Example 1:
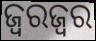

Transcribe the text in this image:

ଜ୍ୱରଜ୍ୱର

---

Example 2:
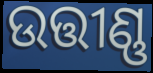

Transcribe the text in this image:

ଉତ୍ତୀଣ୍ଣ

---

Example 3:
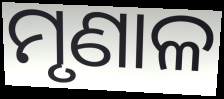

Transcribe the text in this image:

ମୃଣାଳ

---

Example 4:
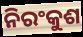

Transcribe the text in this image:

ନିରଂକୁଶ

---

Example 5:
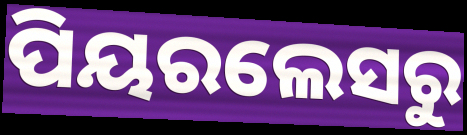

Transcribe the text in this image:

ପିୟରଲେସରୁ